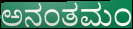
ಅನಂತಮಂ